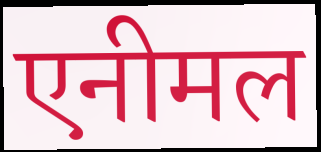
एनीमल